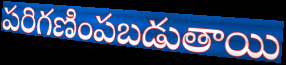
పరిగణింపబడుతాయి